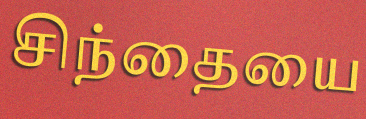
சிந்தையை